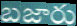
బజారు